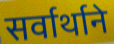
सर्वार्थाने